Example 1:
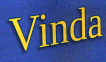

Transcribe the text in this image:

Vinda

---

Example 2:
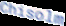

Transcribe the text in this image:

Chisolm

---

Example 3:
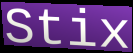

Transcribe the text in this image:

Stix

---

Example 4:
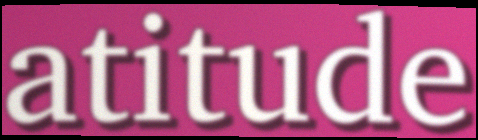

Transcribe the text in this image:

atitude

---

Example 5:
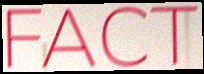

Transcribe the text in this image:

FACT